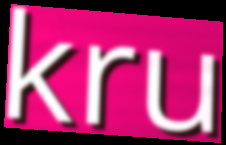
kru